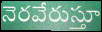
నెరవేరుస్తూ